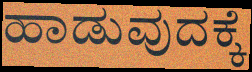
ಹಾಡುವುದಕ್ಕೆ